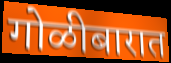
गोळीबारात